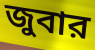
জুবার